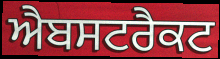
ਐਬਸਟਰੈਕਟ